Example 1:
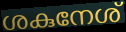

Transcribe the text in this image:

ശകുനേശ്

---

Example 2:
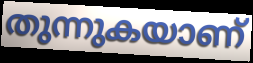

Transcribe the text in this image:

തുന്നുകയാണ്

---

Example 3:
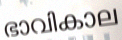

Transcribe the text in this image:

ഭാവികാല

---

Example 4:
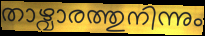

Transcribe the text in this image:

താഴ്വാരത്തുനിന്നും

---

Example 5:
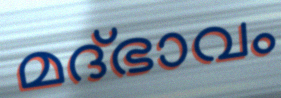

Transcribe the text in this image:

മദ്ഭാവം